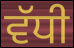
ਵੱਧੀ